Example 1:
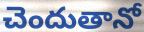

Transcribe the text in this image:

చెందుతానో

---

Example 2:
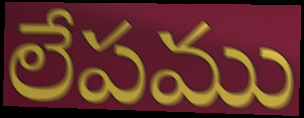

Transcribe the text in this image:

లేపము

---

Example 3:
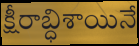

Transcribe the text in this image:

క్షీరాబ్ధిశాయినే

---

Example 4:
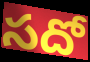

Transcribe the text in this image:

సదో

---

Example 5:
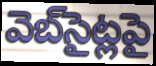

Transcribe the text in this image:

వెబ్‌సైట్లపై